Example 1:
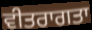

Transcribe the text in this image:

ਵੀਤਰਾਗਤਾ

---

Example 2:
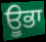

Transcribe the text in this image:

ਊਭਾ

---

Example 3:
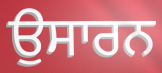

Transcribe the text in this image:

ਉਸਾਰਨ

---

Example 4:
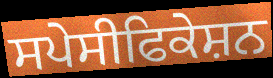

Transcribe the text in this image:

ਸਪੇਸੀਫਿਕੇਸ਼ਨ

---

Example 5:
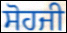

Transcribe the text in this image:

ਸੋਹਜੀ